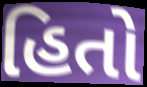
હિતો